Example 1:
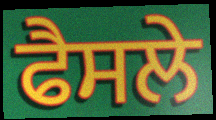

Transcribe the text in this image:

ਫੈਸਲੇ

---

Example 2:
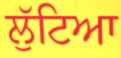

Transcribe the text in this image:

ਲੁੱਟਿਆ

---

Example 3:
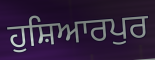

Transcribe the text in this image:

ਹੁਸ਼ਿਆਰਪੁਰ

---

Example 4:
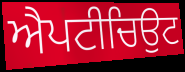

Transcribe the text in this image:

ਐਪਟੀਚਿਉਟ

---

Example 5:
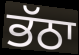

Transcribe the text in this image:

ਭੱਠਾ